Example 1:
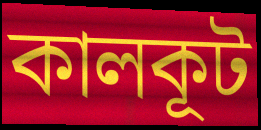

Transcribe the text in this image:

কালকূট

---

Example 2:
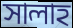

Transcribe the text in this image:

সালাহ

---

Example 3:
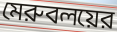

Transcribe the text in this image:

মেরুবলয়ের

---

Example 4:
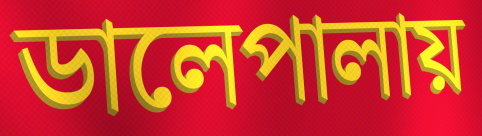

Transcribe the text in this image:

ডালেপালায়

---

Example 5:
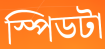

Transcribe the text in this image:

স্পিডটা